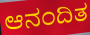
ಆನಂದಿತ